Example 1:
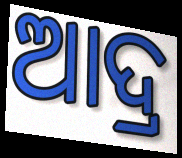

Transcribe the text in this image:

ଆଦ୍ର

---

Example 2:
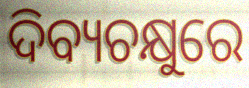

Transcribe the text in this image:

ଦିବ୍ୟଚକ୍ଷୁରେ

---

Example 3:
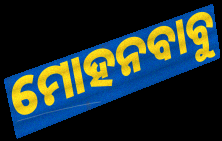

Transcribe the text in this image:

ମୋହନବାବୁ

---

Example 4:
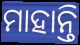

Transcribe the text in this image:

ମାହାନ୍ତି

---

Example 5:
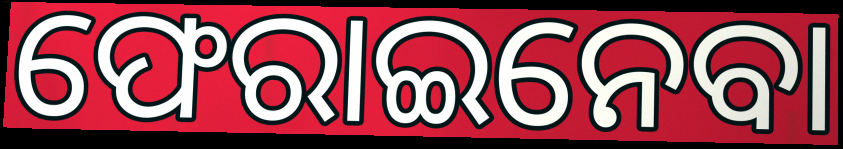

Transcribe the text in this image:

ଫେରାଇନେବା